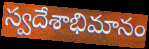
స్వదేశాభిమానం